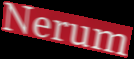
Nerum